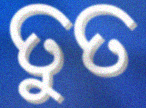
ତୁତ